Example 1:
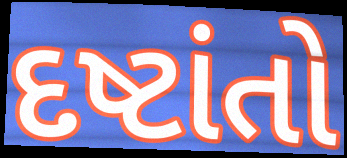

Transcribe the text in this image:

દષ્ટાંતો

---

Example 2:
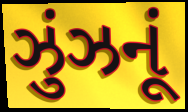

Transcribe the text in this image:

ઝુંઝનૂં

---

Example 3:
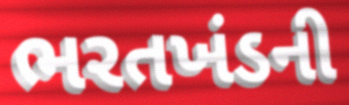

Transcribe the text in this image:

ભરતખંડની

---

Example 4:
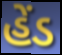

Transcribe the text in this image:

હેંડ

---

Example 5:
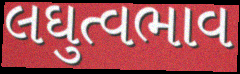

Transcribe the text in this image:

લઘુત્વભાવ